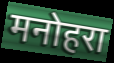
मनोहरा